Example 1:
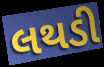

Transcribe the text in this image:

લથડી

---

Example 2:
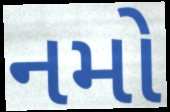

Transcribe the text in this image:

નમો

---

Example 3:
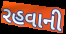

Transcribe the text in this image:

રહવાની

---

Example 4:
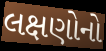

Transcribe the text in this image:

લક્ષણોનો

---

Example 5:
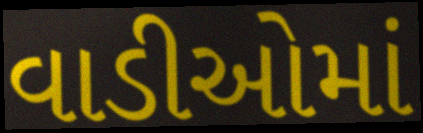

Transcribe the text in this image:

વાડીઓમાં